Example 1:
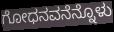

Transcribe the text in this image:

ಗೋಧನವನೆನ್ನೊಳು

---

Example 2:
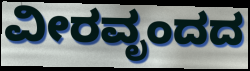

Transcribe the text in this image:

ವೀರವೃಂದದ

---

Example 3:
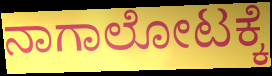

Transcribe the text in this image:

ನಾಗಾಲೋಟಕ್ಕೆ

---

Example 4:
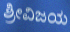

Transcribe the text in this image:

ಶ್ರೀವಿಜಯ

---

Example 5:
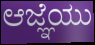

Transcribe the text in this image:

ಆಜ್ಞೆಯು